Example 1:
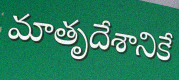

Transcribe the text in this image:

మాతృదేశానికే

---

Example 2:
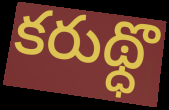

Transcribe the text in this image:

కరుథ్ధొ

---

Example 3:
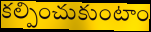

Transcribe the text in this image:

కల్పించుకుంటాం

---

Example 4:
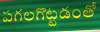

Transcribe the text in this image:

పగలగొట్టడంతో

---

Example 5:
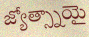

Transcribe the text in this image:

జ్యోత్స్నాయై